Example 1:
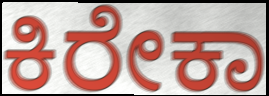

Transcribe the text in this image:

ಕಿರೇಕಾ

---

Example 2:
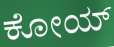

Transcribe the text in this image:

ಕೋಯ್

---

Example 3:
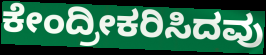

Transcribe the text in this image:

ಕೇಂದ್ರೀಕರಿಸಿದವು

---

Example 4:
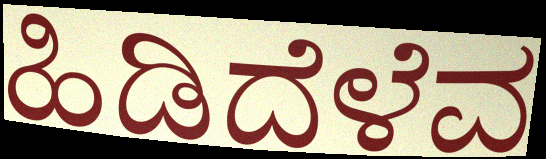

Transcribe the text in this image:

ಹಿಡಿದೆಳೆವ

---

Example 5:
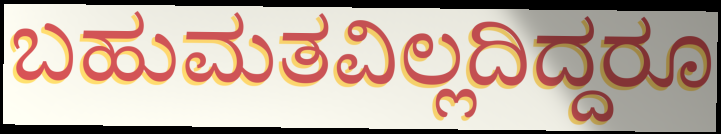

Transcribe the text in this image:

ಬಹುಮತವಿಲ್ಲದಿದ್ದರೂ